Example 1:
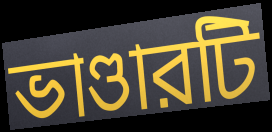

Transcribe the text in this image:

ভাণ্ডারটি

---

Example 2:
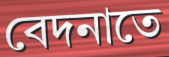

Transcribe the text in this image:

বেদনাতে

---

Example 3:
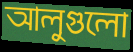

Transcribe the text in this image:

আলুগুলো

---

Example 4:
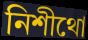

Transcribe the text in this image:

নিশীথো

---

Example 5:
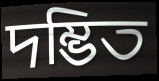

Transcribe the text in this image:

দম্ভিত